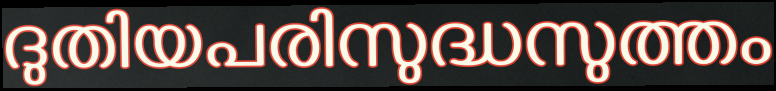
ദുതിയപരിസുദ്ധസുത്തം